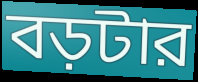
বড়টার